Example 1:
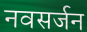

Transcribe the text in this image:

नवसर्जन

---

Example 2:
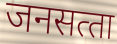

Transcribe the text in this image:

जनसत्‍ता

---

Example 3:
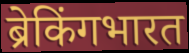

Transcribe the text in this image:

ब्रेकिंगभारत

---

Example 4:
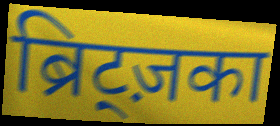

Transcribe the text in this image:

ब्रिट्ज़का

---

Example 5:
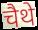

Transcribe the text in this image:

चैथे